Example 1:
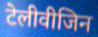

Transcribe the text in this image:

टेलीवीजिन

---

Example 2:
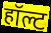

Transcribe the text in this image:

हॉल्ट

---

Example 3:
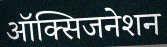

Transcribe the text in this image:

ऑक्सिजनेशन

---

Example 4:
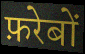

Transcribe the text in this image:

फ़रेबों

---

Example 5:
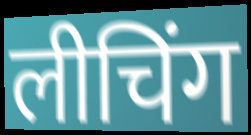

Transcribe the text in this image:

लीचिंग